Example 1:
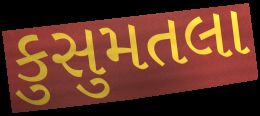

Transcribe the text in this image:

કુસુમતલા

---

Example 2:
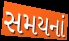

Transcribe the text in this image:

સમયનાં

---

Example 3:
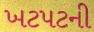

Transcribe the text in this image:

ખટપટની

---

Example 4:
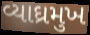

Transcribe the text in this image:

વ્યાઘ્રમુખ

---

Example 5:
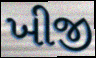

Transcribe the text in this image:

ખીજી